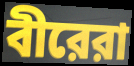
বীরেরা